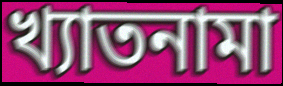
খ্যাতনামা